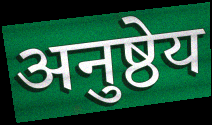
अनुष्ठेय